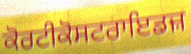
ਕੋਰਟੀਕੋਸਟਰਾਇਡਜ਼